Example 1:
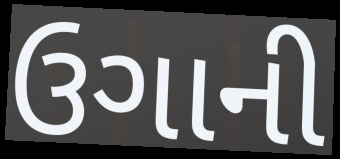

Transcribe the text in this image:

ઉગાની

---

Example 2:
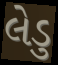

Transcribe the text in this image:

લેડુ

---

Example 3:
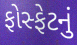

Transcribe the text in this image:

ફોસ્ફેટનું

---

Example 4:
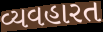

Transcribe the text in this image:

વ્યવહારત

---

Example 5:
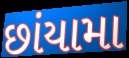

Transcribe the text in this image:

છાંયામા